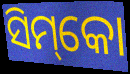
ସିମ୍‌କୋ